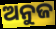
ଅନୁଜ